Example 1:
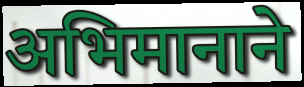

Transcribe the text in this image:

अभिमानाने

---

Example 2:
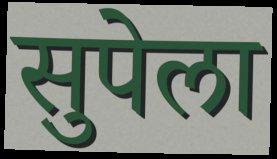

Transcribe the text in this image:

सुपेला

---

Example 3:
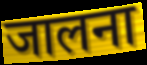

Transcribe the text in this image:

जालना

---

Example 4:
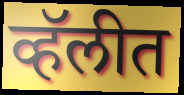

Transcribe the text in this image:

व्हॅलीत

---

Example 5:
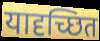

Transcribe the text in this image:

यादृच्छित